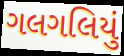
ગલગલિયું